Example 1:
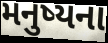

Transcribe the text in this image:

મનુષ્યના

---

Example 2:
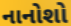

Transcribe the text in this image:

નાનોશો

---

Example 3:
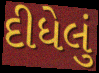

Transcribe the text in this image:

દીધેલું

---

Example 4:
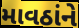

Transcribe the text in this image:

માવઠાંને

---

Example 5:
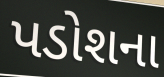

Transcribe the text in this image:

પડોશના